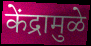
केंद्रामुळे